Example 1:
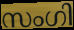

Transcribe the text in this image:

സംഗി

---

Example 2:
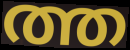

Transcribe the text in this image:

ത്ത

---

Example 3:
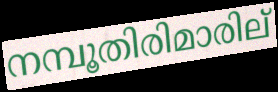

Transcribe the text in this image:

നമ്പൂതിരിമാരില്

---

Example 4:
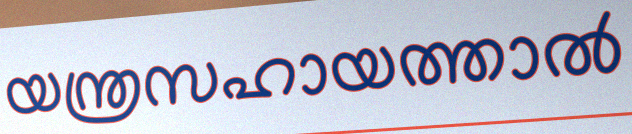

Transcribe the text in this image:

യന്ത്രസഹായത്താൽ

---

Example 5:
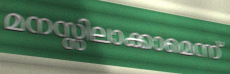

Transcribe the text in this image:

മനസ്സിലാക്കാമെന്ന്